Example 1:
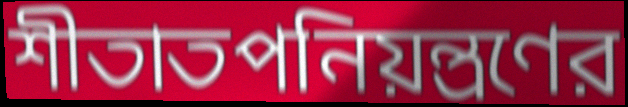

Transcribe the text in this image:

শীতাতপনিয়ন্ত্রণের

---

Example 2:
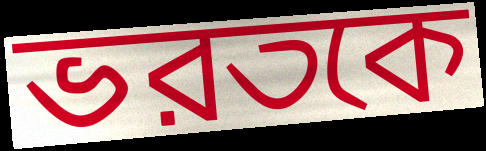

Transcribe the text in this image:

ভরতকে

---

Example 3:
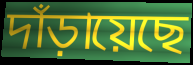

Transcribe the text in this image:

দাঁড়ায়েছে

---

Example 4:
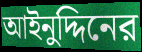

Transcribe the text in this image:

আইনুদ্দিনের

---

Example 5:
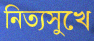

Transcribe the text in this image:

নিত্যসুখে